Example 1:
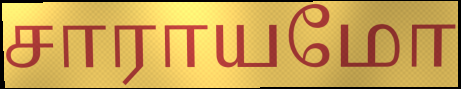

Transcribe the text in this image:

சாராயமோ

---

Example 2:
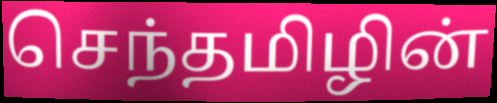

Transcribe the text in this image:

செந்தமிழின்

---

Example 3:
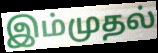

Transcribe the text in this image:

இம்முதல்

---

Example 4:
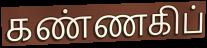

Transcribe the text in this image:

கண்ணகிப்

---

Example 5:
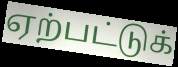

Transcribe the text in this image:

ஏற்பட்டுக்